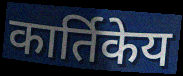
कार्तिकेय